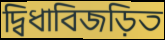
দ্বিধাবিজড়িত